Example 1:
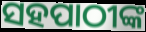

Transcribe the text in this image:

ସହପାଠୀଙ୍କ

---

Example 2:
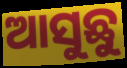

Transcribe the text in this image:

ଆସୁଛୁ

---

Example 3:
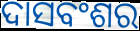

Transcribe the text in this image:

ଦାସବଂଶର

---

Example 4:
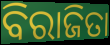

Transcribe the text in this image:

ବିରାଜିତା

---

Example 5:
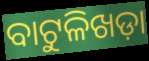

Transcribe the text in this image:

ବାଟୁଳିଖଡ଼ା